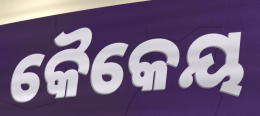
କୈକେୟ